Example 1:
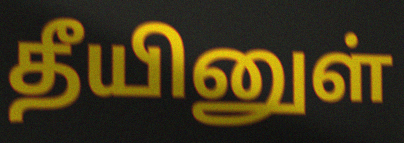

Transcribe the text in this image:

தீயினுள்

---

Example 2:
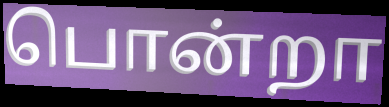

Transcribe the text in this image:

பொன்றா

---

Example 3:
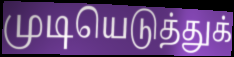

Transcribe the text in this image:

முடியெடுத்துக்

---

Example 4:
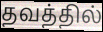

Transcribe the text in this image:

தவத்தில்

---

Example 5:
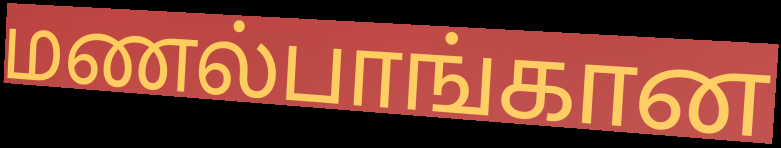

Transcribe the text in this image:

மணல்பாங்கான